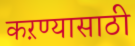
कऱण्यासाठी